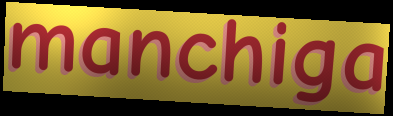
manchiga